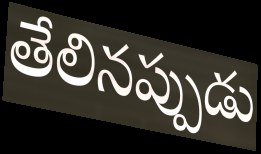
తేలినప్పుడు